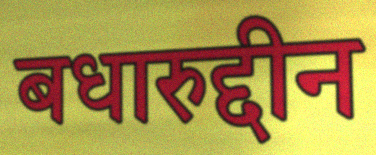
बधारुद्दीन